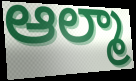
ఆల్మా